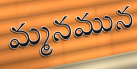
మ్మనమున